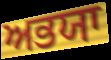
ਅਭਯਾ